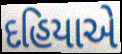
દહિયાએ